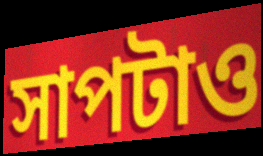
সাপটাও